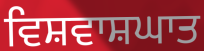
ਵਿਸ਼ਵਾਸ਼ਘਾਤ